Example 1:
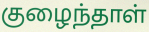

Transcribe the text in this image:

குழைந்தாள்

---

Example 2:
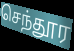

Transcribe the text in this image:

செந்தூர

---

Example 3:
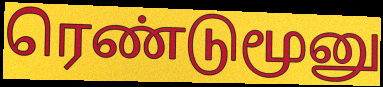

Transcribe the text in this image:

ரெண்டுமூனு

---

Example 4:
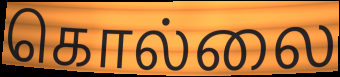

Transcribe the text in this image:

கொல்லை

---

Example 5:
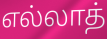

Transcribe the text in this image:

எல்லாத்